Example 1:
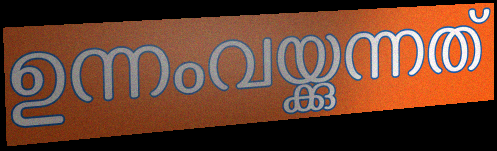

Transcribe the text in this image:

ഉന്നംവയ്ക്കുന്നത്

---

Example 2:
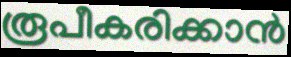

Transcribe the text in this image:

രൂപീകരിക്കാൻ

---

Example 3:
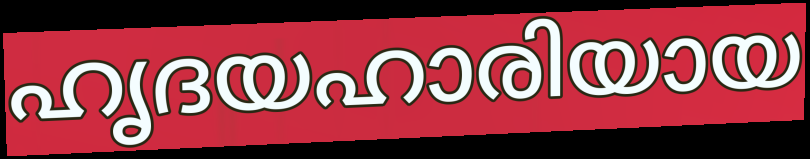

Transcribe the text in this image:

ഹൃദയഹാരിയായ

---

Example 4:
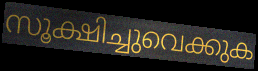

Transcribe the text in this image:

സൂക്ഷിച്ചുവെക്കുക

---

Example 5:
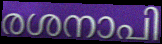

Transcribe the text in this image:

രശനാപി